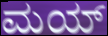
ಮಯ್